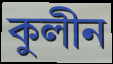
কুলীন